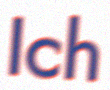
Ich